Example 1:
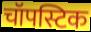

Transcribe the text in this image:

चॉपस्टिक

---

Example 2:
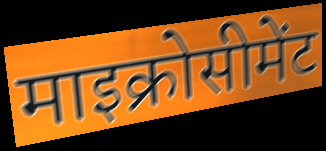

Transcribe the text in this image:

माइक्रोसीमेंट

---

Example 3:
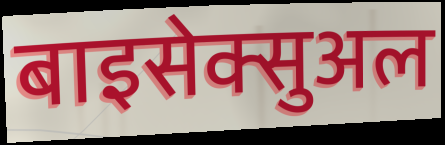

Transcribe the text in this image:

बाइसेक्सुअल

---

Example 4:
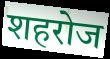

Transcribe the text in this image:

शहरोज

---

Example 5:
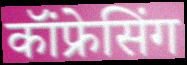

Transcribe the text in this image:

कॉंफ्रेसिंग